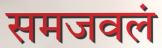
समजवलं